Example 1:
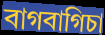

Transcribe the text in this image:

বাগবাগিচা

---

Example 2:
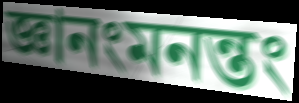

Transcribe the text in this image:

জ্ঞানংমনন্তং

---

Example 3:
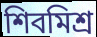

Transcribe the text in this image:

শিবমিশ্র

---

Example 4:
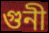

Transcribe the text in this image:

গুনী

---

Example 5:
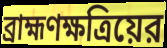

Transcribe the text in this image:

ব্রাহ্মণক্ষত্রিয়ের